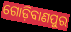
ଗୋଡ଼ିବାଣପୁର